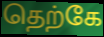
தெற்கே